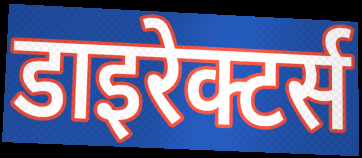
डाइरेक्टर्स